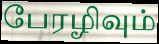
பேரழிவும்